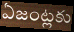
ఏజంట్లకు